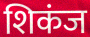
शिकंज